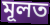
মূলত